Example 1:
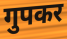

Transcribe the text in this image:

गुपकर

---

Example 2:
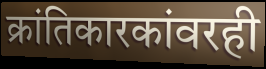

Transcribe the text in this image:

क्रांतिकारकांवरही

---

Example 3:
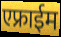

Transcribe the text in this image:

एफ्राईम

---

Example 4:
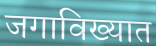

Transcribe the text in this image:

जगाविख्यात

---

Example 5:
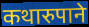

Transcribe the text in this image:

कथारुपाने